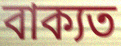
বাক্যত